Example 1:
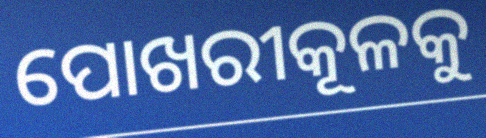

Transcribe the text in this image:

ପୋଖରୀକୂଳକୁ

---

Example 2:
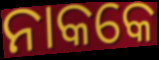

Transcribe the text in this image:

ନାକକେ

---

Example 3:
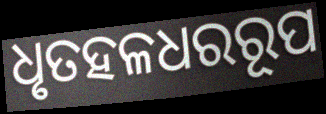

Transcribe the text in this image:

ଧୃତହଳଧରରୂପ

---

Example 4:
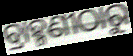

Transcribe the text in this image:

ବ୍ରାହ୍ମଣୀଠାରୁ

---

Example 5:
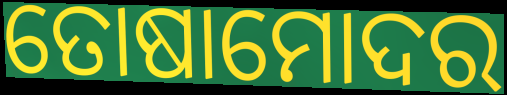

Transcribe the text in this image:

ତୋଷାମୋଦର